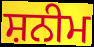
ਸ਼ਨੀਮ